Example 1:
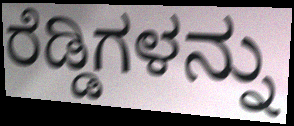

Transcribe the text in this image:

ರೆಡ್ಡಿಗಳನ್ನು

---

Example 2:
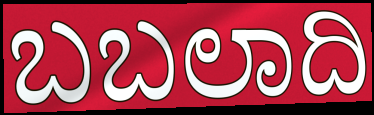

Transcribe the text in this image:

ಬಬಲಾದಿ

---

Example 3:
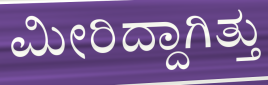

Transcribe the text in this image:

ಮೀರಿದ್ದಾಗಿತ್ತು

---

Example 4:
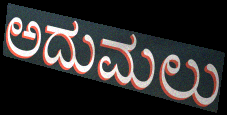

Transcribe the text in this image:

ಅದುಮಲು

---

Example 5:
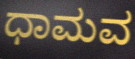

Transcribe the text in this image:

ಧಾಮವ